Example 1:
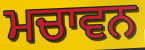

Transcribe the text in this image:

ਮਚਾਵਨ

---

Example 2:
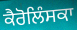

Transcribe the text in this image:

ਕੈਰੋਲਿੰਸਕਾ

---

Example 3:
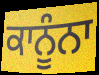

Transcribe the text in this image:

ਕਾਨੂੰਨਾ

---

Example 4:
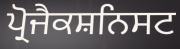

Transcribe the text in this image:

ਪ੍ਰੋਜੈਕਸ਼ਨਿਸਟ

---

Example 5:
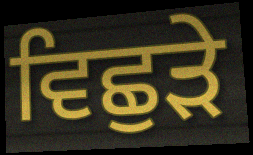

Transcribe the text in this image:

ਵਿਛੁੜੇ